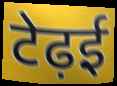
टेढ़ई